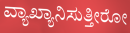
ವ್ಯಾಖ್ಯಾನಿಸುತ್ತೀರೋ